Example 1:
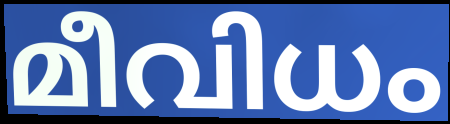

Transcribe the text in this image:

മീവിധം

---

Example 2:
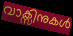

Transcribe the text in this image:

വാക്സിനുകൾ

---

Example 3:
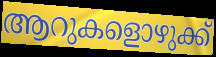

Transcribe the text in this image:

ആറുകളൊഴുക്ക്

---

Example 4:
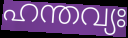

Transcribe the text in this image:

ഹന്തവ്യഃ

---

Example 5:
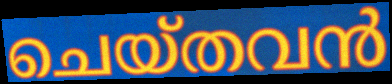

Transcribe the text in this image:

ചെയ്തവൻ